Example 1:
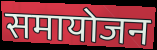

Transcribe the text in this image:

समायोजन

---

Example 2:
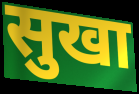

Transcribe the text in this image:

सुखा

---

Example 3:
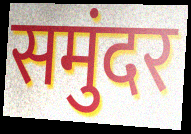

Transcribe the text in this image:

समुंदर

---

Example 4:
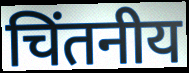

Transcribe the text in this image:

चिंतनीय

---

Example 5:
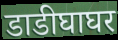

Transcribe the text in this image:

डाडीघाघर